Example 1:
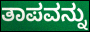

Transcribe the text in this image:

ತಾಪವನ್ನು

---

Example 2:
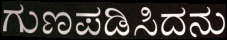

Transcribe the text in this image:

ಗುಣಪಡಿಸಿದನು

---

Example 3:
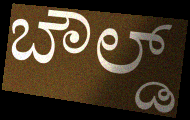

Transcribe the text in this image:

ಬೌಲ್ಡ್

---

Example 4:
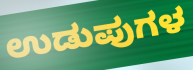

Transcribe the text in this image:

ಉಡುಪುಗಳ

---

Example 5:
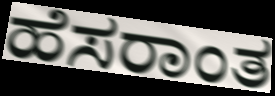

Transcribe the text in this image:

ಹೆಸರಾಂತ